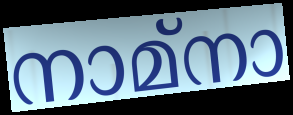
നാമ്നാ